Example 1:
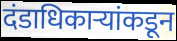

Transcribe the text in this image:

दंडाधिकाऱ्यांकडून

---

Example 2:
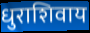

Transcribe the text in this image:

धुराशिवाय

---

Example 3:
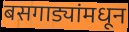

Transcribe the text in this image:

बसगाड्यांमधून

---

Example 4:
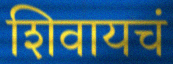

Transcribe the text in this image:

शिवायचं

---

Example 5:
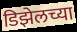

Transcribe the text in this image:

डिझेलच्या